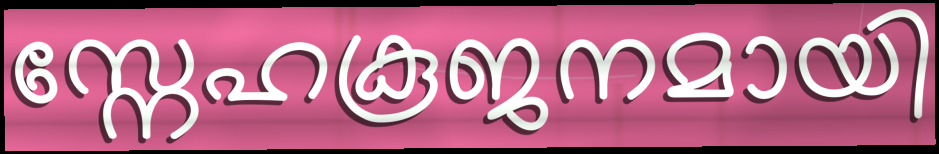
സ്നേഹകൂജനമായി